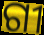
ଗୀ